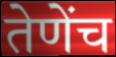
तेणेंच